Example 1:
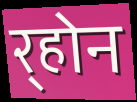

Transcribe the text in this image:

र्‍होन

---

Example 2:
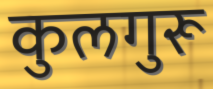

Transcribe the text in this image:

कुलगुरू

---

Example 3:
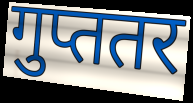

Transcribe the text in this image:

गुप्ततर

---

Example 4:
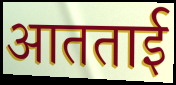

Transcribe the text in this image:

आतताई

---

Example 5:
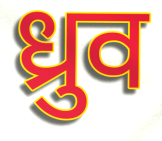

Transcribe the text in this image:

ध्रुव